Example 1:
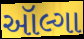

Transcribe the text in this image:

ઑલ્ગા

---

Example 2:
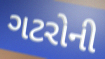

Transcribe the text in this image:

ગટરોની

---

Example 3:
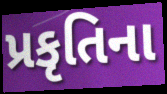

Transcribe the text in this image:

પ્રકૃતિના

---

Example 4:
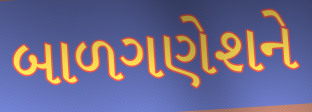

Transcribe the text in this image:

બાળગણેશને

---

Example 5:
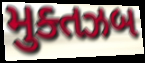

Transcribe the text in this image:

મુક્તઝબ